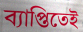
ব্যাপ্তিতেই